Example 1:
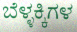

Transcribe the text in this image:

ಬೆಳ್ಳಕ್ಕಿಗಳ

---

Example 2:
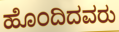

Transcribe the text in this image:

ಹೊಂದಿದವರು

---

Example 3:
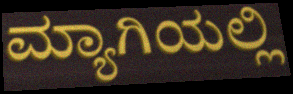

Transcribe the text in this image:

ಮ್ಯಾಗಿಯಲ್ಲಿ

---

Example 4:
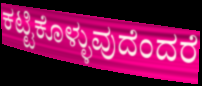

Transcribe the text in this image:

ಕಟ್ಟಿಕೊಳ್ಳುವುದೆಂದರೆ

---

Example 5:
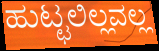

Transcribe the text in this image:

ಹುಟ್ಟಲಿಲ್ಲವಲ್ಲ